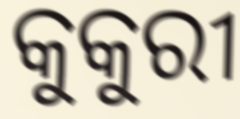
କୁକୁରୀ